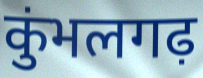
कुंभलगढ़